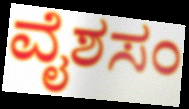
ವೈಶಸಂ